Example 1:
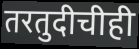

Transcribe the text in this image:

तरतुदीचीही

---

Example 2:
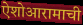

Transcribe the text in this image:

ऐशोआरामाची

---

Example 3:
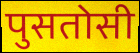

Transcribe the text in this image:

पुसतोसी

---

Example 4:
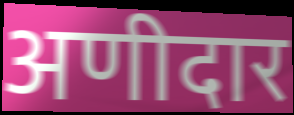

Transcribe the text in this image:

अणीदार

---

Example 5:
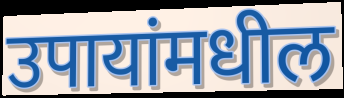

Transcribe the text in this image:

उपायांमधील